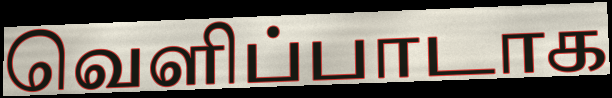
வெளிப்பாடாக